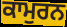
ਕਾਮੁਰਨ